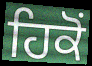
ਹਿਕੋਂ